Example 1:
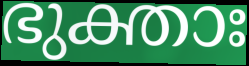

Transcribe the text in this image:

ഭുക്താഃ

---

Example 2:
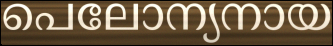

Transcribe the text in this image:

പെലോന്യനായ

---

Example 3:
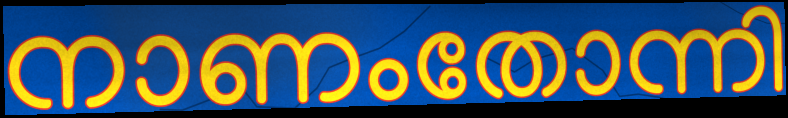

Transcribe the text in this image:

നാണംതോന്നി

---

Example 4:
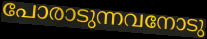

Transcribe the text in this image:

പോരാടുന്നവനോടു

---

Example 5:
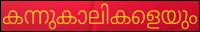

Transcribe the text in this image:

കന്നുകാലികളെയും